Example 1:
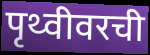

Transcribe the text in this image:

पृथ्वीवरची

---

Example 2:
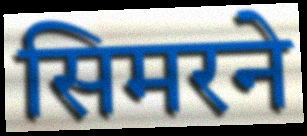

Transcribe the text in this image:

सिमरने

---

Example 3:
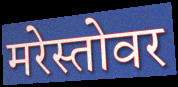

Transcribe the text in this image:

मरेस्तोवर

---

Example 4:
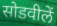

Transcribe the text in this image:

सोडवीलें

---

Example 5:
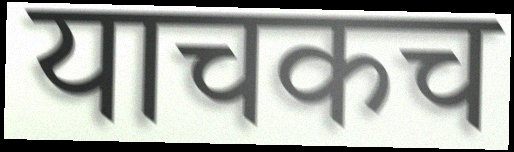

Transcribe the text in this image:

याचकच